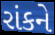
રાંકને